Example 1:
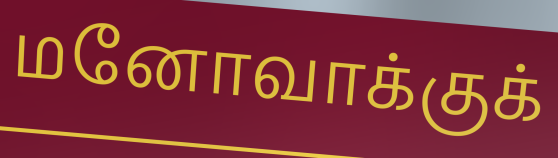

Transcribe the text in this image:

மனோவாக்குக்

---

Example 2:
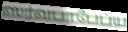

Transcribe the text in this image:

ஸர்வபாபேப்ய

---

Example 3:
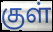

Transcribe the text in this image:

குள்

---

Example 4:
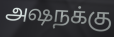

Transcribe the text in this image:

அஷநக்கு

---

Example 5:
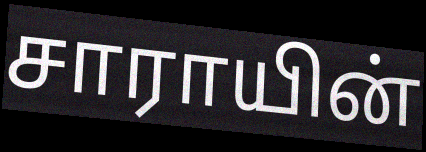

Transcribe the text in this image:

சாராயின்